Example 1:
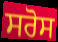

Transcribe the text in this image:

ਸਰੋਸ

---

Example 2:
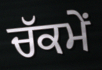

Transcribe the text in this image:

ਚੱਕਮੇਂ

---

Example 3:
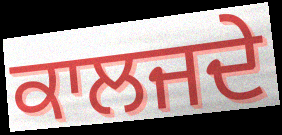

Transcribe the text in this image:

ਕਾਲਜਦੇ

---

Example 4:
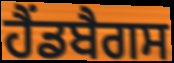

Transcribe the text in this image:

ਹੈਂਡਬੈਗਸ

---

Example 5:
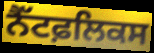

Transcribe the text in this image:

ਨੈੱਟਫ਼ਲਿਕਸ